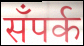
सँपर्क